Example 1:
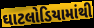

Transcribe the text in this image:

ઘાટલોડિયામાંથી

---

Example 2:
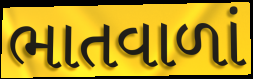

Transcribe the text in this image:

ભાતવાળાં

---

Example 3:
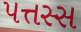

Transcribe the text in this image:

પત્તસ્સ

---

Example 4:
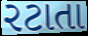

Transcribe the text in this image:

રટાતા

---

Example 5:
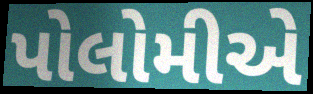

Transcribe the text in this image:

પોલોમીએ